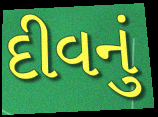
દીવનું